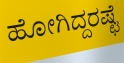
ಹೋಗಿದ್ದರಷ್ಟೆ